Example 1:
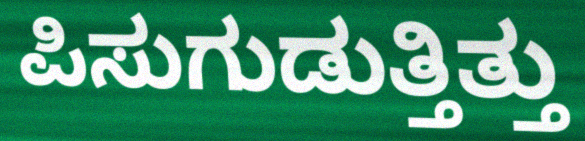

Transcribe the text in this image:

ಪಿಸುಗುಡುತ್ತಿತ್ತು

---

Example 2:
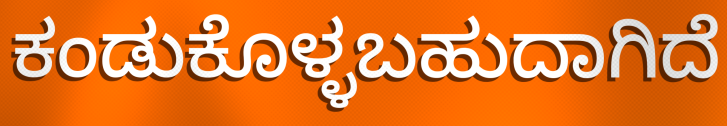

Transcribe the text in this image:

ಕಂಡುಕೊಳ್ಳಬಹುದಾಗಿದೆ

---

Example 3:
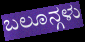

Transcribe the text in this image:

ಬಲೂನ್ಗಳು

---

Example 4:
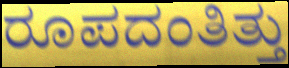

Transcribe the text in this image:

ರೂಪದಂತಿತ್ತು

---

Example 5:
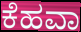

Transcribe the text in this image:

ಕೆಹವಾ